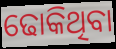
ଢୋକିଥିବା